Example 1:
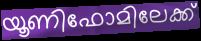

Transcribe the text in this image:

യൂണിഫോമിലേക്ക്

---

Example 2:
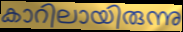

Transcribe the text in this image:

കാറിലായിരുന്നു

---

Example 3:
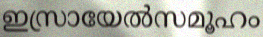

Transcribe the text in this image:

ഇസ്രായേൽസമൂഹം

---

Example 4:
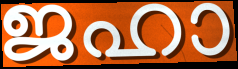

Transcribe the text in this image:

ജഹാ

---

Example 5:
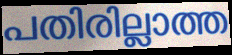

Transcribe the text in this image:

പതിരില്ലാത്ത